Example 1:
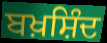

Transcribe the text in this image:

ਬਖ਼ਸ਼ਿੰਦ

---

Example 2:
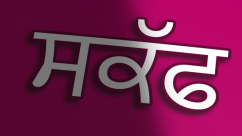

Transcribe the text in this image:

ਸਕੱਫ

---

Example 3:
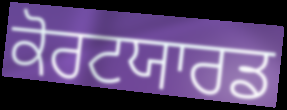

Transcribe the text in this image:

ਕੋਰਟਯਾਰਡ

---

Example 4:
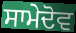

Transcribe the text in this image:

ਸਾਮੇਦੋਵ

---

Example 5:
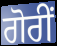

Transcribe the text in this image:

ਗੋਰੀਂ